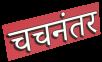
चचनंतर